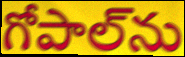
గోపాల్‌ను